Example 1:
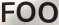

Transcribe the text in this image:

FOO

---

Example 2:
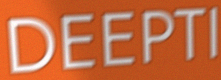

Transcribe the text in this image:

DEEPTI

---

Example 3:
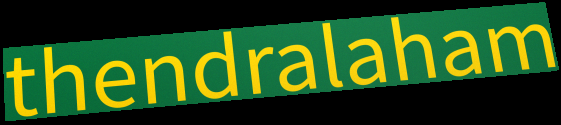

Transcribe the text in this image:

thendralaham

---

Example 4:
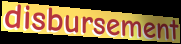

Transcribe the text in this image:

disbursement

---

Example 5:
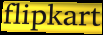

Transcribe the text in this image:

flipkart